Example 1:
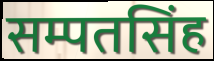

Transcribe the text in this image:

सम्पतसिंह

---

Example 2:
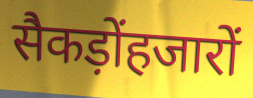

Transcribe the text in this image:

सैकड़ोंहजारों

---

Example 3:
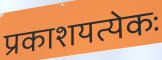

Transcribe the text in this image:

प्रकाशयत्येकः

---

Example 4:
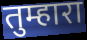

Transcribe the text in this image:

तुम्‍हारा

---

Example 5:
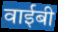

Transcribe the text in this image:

वाईबी